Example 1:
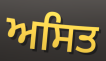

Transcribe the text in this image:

ਅਸਿਤ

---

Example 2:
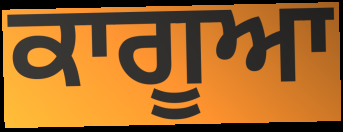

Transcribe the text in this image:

ਕਾਗੂਆ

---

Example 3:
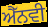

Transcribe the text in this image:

ਐੱਨਵੀ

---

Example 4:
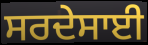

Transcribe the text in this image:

ਸਰਦੇਸਾਈ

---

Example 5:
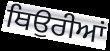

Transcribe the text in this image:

ਥਿਉਰੀਆਂ